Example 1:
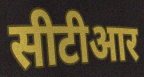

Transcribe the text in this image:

सीटीआर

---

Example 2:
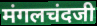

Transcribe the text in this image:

मंगलचंदजी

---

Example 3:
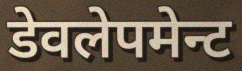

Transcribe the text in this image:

डेवलेपमेन्ट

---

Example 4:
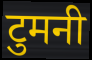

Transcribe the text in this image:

टुमनी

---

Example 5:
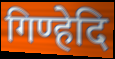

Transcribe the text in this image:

गिण्हेदि